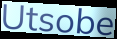
Utsobe